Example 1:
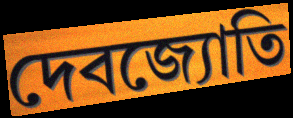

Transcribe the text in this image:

দেবজ্যোতি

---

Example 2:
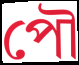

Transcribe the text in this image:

পৌ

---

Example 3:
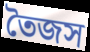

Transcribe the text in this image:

তৈজস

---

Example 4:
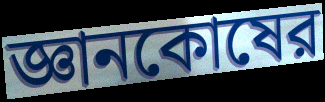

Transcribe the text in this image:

জ্ঞানকোষের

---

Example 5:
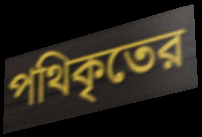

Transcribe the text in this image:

পথিকৃতের